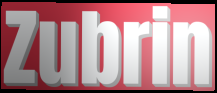
Zubrin